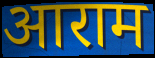
आराम